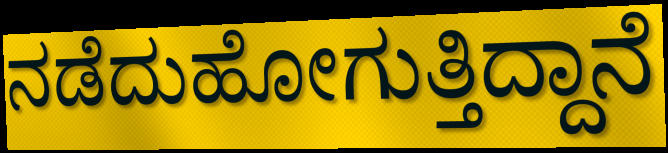
ನಡೆದುಹೋಗುತ್ತಿದ್ದಾನೆ